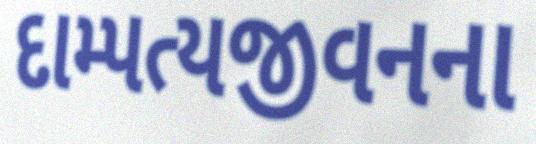
દામ્પત્યજીવનના